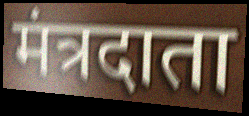
मंत्रदाता